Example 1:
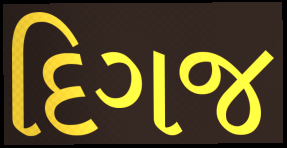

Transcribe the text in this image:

દિગજ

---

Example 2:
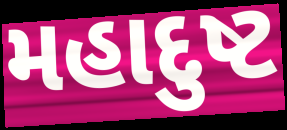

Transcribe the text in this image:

મહાદુષ્ટ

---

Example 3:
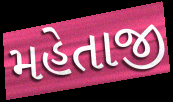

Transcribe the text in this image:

મહેતાજી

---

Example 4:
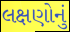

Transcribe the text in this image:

લક્ષણોનું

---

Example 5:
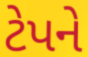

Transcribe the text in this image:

ટેપને